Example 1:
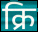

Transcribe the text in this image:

क्रि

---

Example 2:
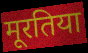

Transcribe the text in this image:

मूरतिया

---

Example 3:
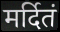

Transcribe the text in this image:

मर्दितं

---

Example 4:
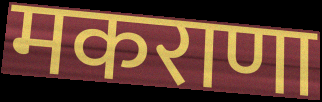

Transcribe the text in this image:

मकराणा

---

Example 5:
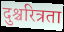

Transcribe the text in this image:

दुश्चरित्रता